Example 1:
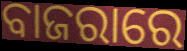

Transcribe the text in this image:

ବାଜରାରେ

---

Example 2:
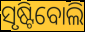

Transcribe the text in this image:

ସୃଷ୍ଟିବୋଲି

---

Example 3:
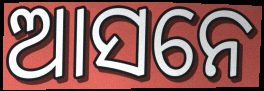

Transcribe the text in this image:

ଆସନେ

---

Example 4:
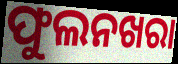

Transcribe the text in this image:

ଫୁଲନଖରା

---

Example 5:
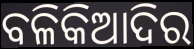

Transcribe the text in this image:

ବଳିକିଆଦିର